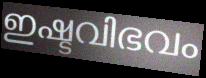
ഇഷ്ടവിഭവം